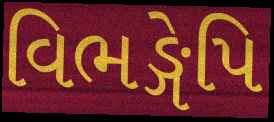
વિભઙ્ગેપિ